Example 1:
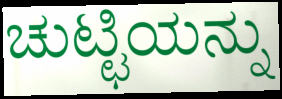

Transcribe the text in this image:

ಚುಟ್ಟಿಯನ್ನು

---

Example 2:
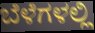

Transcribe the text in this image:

ಬೆಳೆಗಳಲ್ಲಿ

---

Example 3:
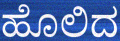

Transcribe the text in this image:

ಹೊಲಿದ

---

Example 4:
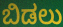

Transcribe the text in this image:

ಬಿಡಲು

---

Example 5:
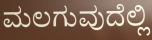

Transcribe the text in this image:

ಮಲಗುವುದೆಲ್ಲಿ